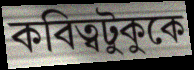
কবিত্বটুকুকে